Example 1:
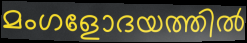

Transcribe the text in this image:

മംഗളോദയത്തിൽ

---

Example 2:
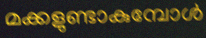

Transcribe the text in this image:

മക്കളുണ്ടാകുമ്പോൾ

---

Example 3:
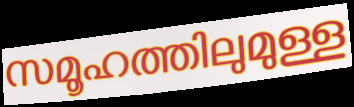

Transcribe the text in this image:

സമൂഹത്തിലുമുള്ള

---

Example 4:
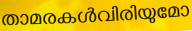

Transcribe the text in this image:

താമരകൾവിരിയുമോ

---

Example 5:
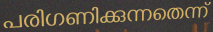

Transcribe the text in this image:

പരിഗണിക്കുന്നതെന്ന്